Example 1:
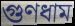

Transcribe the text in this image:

গুণধাম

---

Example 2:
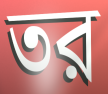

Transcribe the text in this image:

তর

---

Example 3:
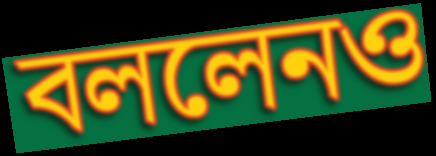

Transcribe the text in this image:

বললেনও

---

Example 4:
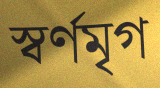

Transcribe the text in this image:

স্বর্ণমৃগ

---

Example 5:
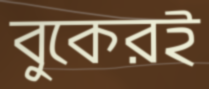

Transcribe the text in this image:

বুকেরই